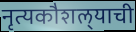
नृत्यकौशल्याची